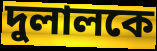
দুলালকে